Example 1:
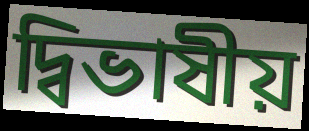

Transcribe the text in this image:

দ্বিভাষীয়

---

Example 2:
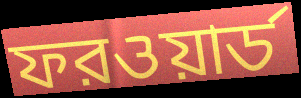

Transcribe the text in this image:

ফরওয়ার্ড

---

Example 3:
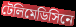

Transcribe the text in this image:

টেলিমেডিসিনে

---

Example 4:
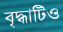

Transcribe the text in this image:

বৃদ্ধাটিও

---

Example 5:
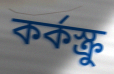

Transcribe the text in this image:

কর্কস্ক্রু